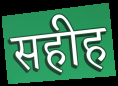
सहीह